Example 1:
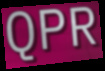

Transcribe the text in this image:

QPR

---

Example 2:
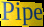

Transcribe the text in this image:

Pipe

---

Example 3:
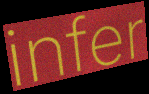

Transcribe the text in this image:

infer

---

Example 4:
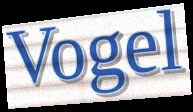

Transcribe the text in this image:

Vogel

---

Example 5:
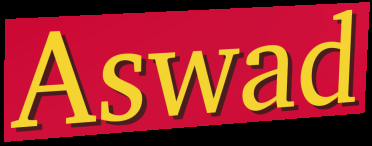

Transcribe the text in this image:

Aswad